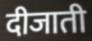
दीजाती